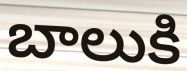
బాలుకి